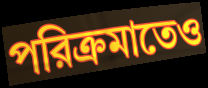
পরিক্রমাতেও